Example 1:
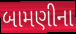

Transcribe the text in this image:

બામણીના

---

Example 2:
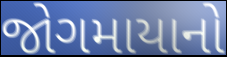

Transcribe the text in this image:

જોગમાયાનો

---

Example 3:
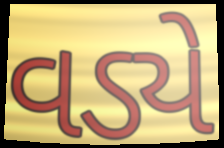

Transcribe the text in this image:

વડ્યે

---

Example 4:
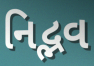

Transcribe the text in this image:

નિદ્ભવ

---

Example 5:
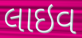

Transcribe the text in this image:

લાઇવ